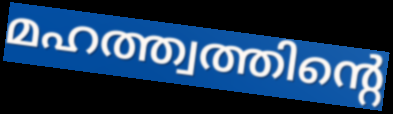
മഹത്ത്വത്തിന്റെ